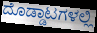
ದೊಡ್ಡಾಟಗಳಲ್ಲಿ